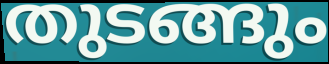
തുടങ്ങും